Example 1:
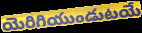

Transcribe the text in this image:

యెరిగియుండుటయే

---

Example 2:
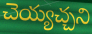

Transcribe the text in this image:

చెయ్యచ్చని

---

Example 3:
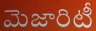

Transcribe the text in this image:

మెజారిటీ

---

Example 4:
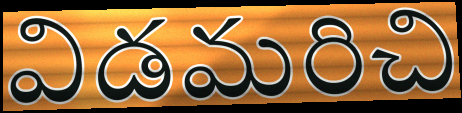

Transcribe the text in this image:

విడమరిచి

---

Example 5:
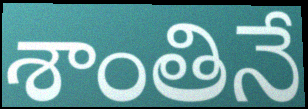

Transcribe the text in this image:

శాంతినే